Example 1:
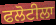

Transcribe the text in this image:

ਫਲੋਟੀਲਾ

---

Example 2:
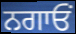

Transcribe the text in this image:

ਨਗਾਓਂ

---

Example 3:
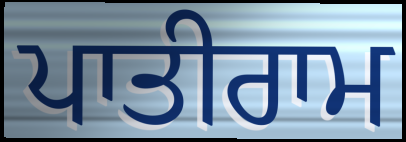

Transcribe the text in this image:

ਪਾਤੀਰਾਮ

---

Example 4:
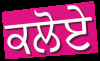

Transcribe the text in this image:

ਕਲੋਏ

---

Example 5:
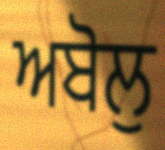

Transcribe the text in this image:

ਅਬੋਲੁ